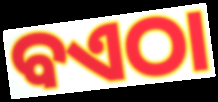
ବଏଠା